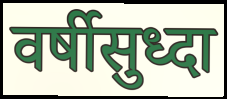
वर्षीसुध्दा